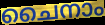
ചൈനാം